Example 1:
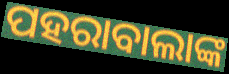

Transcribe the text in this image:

ପହରାବାଲାଙ୍କ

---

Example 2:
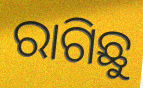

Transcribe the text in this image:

ରାଗିଛୁ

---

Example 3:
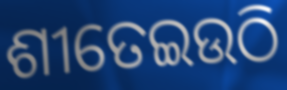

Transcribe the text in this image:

ଶୀତେଇଉଠି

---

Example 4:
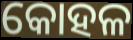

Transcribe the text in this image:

କୋହଳ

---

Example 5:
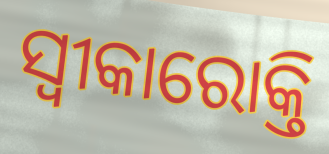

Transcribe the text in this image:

ସ୍ୱୀକାରୋକ୍ତି